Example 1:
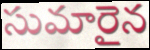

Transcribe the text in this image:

సుమారైన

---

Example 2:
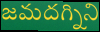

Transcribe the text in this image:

జమదగ్నిని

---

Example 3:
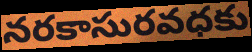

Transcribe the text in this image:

నరకాసురవధకు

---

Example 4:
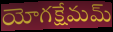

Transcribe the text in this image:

యోగక్షేమమ్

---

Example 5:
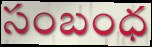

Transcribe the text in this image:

సంబంధ